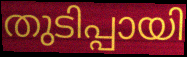
തുടിപ്പായി